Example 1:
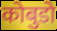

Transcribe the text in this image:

कोबुडो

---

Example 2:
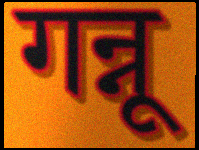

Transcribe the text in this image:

गन्नू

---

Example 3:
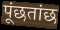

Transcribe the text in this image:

पूंछतांछ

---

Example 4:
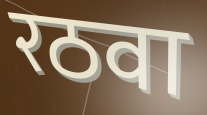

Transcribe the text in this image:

रठवा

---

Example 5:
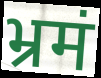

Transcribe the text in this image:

भ्रमं